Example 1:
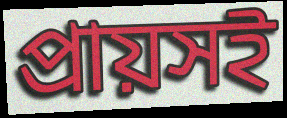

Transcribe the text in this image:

প্রায়সই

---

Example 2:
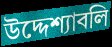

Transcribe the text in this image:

উদ্দেশ্যাবলি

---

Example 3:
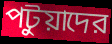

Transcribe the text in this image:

পটুয়াদের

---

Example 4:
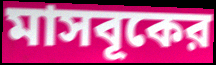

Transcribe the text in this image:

মাসবূকের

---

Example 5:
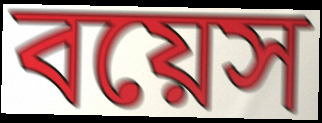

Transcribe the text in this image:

বয়েস